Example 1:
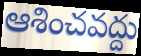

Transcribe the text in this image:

ఆశించవద్దు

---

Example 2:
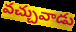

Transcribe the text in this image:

వచ్చువాడు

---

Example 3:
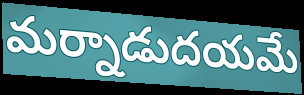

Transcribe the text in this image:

మర్నాడుదయమే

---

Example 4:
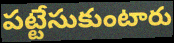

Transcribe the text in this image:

పట్టేసుకుంటారు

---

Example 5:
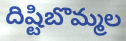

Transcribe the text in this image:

దిష్టిబొమ్మల